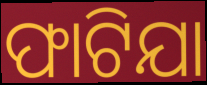
ଫାଟିଯା